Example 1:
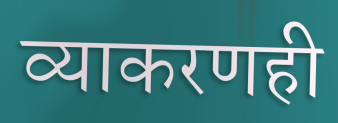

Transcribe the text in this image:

व्याकरणही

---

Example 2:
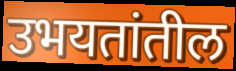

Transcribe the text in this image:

उभयतांतील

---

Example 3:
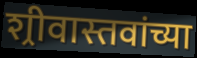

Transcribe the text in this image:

श्रीवास्तवांच्या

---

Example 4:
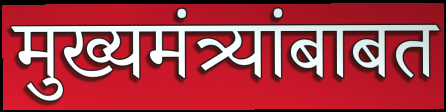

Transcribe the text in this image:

मुख्यमंत्र्यांबाबत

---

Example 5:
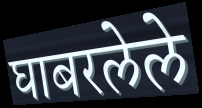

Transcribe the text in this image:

घाबरलेले